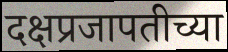
दक्षप्रजापतीच्या